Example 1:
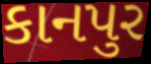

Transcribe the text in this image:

કાનપુર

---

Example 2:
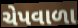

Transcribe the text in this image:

ચેપવાળા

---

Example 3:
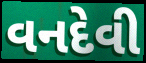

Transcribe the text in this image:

વનદેવી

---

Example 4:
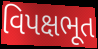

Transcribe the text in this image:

વિપક્ષભૂત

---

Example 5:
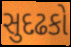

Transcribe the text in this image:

સુદઢકો